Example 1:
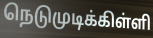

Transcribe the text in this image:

நெடுமுடிக்கிள்ளி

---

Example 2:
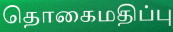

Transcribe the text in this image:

தொகைமதிப்பு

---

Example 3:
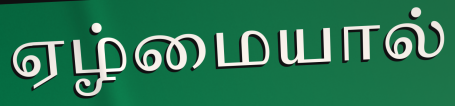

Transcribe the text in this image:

ஏழ்மையால்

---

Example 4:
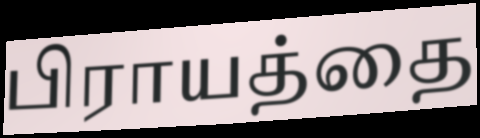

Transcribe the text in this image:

பிராயத்தை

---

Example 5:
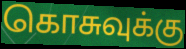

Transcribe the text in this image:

கொசுவுக்கு